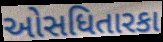
ઓસધિતારકા